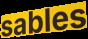
sables